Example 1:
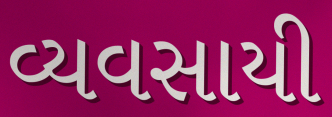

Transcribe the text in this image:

વ્યવસાયી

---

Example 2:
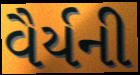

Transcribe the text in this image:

વૈર્યની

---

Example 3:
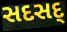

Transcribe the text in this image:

સદસદ્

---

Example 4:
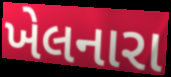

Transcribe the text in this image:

ખેલનારા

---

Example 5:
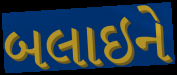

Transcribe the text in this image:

બલાઇને